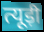
त्यूड़ी